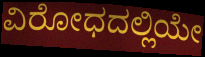
ವಿರೋಧದಲ್ಲಿಯೇ